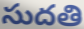
సుదతి